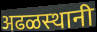
अढळस्थानी